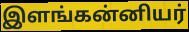
இளங்கன்னியர்